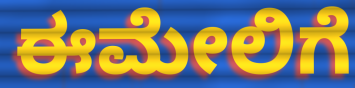
ಈಮೇಲಿಗೆ